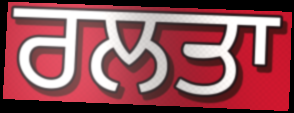
ਰਲਤਾ